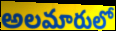
అలమారులో